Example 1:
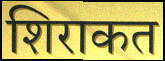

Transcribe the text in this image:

शिराकत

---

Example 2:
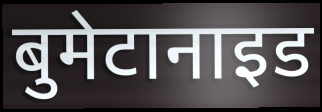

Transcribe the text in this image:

बुमेटानाइड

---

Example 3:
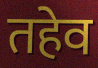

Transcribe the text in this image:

तहेव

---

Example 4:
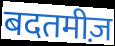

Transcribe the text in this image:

बदतमीज़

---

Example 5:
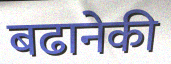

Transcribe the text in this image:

बढानेकी